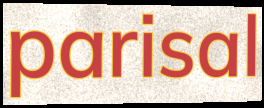
parisal